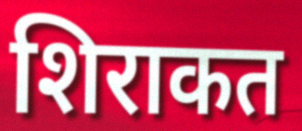
शिराकत